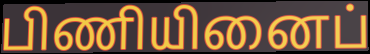
பிணியினைப்